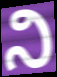
ನಿ